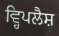
ਵ੍ਹਿਪਲੈਸ਼